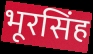
भूरसिंह